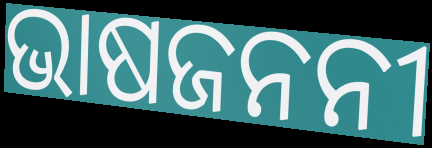
ଭାଷଜନନୀ